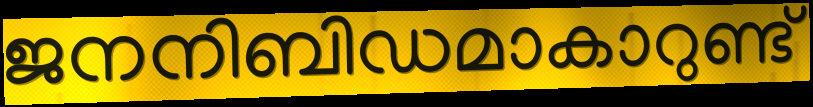
ജനനിബിഡമാകാറുണ്ട്